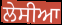
ਲੇਸੀਆ